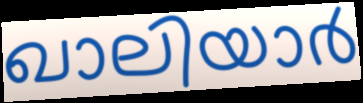
ഖാലിയാർ